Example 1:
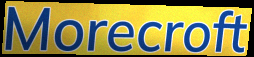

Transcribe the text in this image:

Morecroft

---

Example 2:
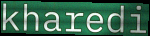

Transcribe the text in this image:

kharedi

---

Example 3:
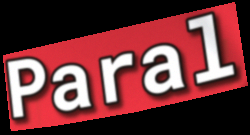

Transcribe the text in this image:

Paral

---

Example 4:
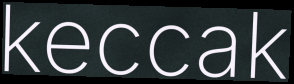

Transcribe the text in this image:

keccak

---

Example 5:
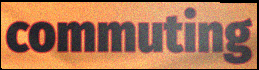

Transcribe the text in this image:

commuting